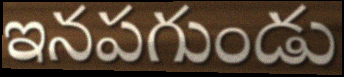
ఇనపగుండు